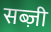
सब्ज़ी